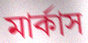
মার্কাস